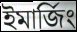
ইমার্জিং